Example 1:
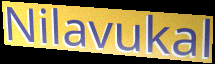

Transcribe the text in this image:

Nilavukal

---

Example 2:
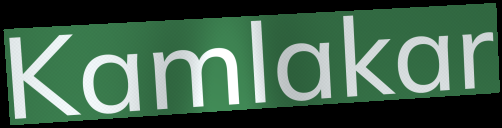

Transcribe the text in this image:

Kamlakar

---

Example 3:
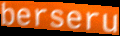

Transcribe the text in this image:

berseru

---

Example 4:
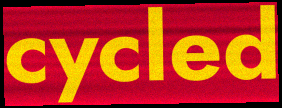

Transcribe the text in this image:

cycled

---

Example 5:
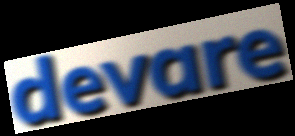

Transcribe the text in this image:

devare